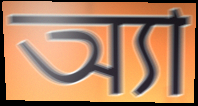
অ্যা